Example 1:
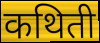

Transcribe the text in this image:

कथिती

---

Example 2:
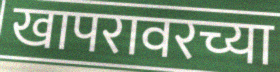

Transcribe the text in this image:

खापरावरच्या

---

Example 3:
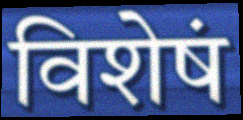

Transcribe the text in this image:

विशेषं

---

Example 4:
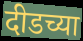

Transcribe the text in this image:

दीडच्या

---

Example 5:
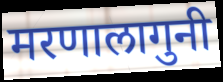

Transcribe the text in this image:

मरणालागुनी